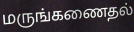
மருங்கணைதல்